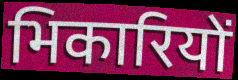
भिकारियों